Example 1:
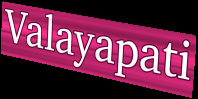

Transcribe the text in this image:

Valayapati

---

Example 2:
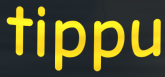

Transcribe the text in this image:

tippu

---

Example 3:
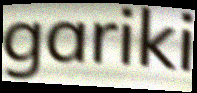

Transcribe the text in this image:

gariki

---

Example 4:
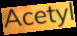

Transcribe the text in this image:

Acetyl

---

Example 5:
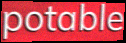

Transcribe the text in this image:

potable